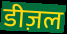
डीज़ल